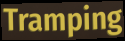
Tramping